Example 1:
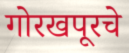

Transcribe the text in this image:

गोरखपूरचे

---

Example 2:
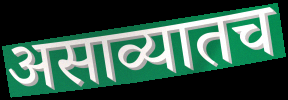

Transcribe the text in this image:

असाव्यातच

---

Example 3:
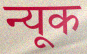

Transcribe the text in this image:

न्यूक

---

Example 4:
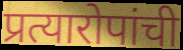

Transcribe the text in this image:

प्रत्यारोपांची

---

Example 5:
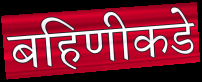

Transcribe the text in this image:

बहिणीकडे